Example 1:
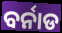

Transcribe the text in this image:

ବର୍ନାଡ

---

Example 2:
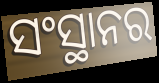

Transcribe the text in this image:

ସଂସ୍ଥାନର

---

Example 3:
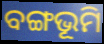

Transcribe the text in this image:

ବଙ୍ଗଭୂମି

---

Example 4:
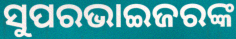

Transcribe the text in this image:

ସୁପରଭାଇଜରଙ୍କ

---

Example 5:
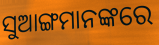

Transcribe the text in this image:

ସୁଆଙ୍ଗମାନଙ୍କରେ